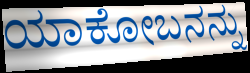
ಯಾಕೋಬನನ್ನು